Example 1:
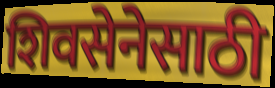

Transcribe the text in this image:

शिवसेनेसाठी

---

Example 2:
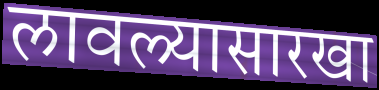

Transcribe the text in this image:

लावल्यासारखा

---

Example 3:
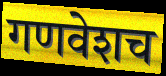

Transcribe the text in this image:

गणवेशच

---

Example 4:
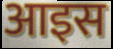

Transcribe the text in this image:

आइस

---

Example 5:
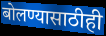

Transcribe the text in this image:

बोलण्यासाठीही